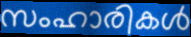
സംഹാരികൾ